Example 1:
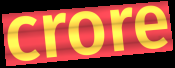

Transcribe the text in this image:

crore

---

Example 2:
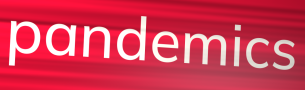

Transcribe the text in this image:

pandemics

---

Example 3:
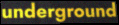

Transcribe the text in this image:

underground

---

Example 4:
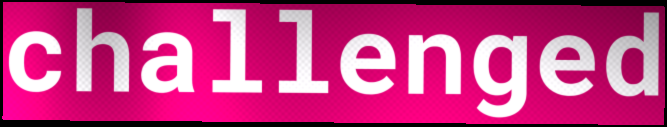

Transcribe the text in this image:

challenged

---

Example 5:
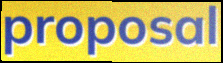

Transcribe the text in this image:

proposal